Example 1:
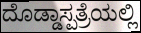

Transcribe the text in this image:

ದೊಡ್ಡಾಸ್ಪತ್ರೆಯಲ್ಲಿ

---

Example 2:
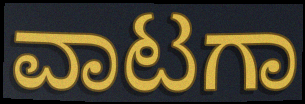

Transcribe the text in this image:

ವಾಟಗಾ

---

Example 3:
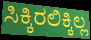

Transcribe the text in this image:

ಸಿಕ್ಕಿರಲಿಕ್ಕಿಲ್ಲ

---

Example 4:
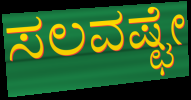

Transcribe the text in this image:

ಸಲವಷ್ಟೇ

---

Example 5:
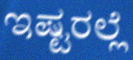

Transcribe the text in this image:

ಇಷ್ಟರಲ್ಲೆ